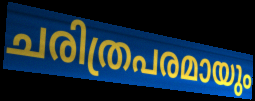
ചരിത്രപരമായും